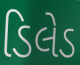
ડિલેડ